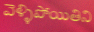
వెళ్ళిపోయితిని